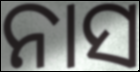
ନାସ